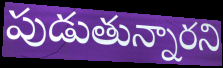
పుడుతున్నారని